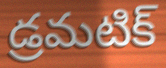
డ్రమటిక్